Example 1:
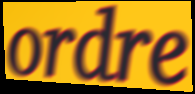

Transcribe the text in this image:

ordre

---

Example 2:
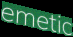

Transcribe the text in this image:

emetic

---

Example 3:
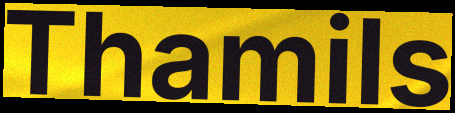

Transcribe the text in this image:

Thamils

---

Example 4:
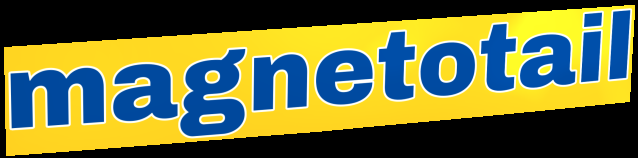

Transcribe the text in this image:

magnetotail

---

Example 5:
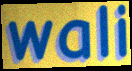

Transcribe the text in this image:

wali